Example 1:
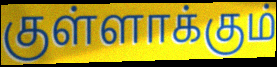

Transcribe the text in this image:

குள்ளாக்கும்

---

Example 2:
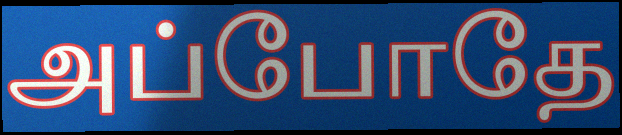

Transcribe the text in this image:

அப்போதே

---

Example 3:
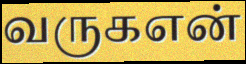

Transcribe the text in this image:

வருகஎன்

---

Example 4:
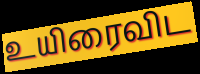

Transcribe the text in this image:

உயிரைவிட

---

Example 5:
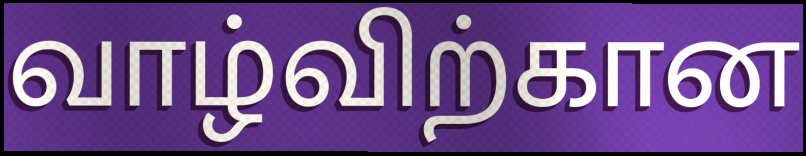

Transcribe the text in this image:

வாழ்விற்கான